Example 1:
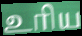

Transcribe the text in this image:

உரிய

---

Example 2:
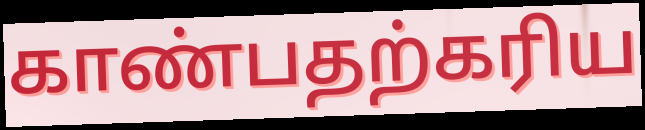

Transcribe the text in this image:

காண்பதற்கரிய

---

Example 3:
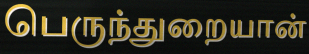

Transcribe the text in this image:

பெருந்துறையான்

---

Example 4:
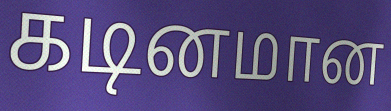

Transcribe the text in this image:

கடினமான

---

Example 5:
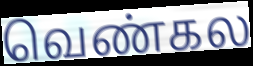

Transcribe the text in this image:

வெண்கல